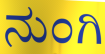
ನುಂಗಿ